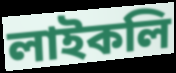
লাইকলি